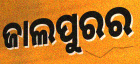
ଜାଲପୁରର